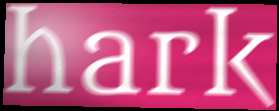
hark